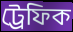
ট্ৰেফিক